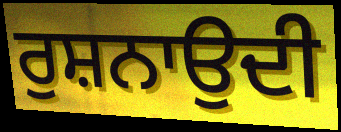
ਰੁਸ਼ਨਾਉਦੀ